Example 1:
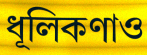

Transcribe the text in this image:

ধূলিকণাও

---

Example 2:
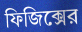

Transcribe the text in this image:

ফিজিক্সের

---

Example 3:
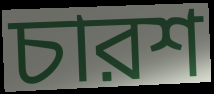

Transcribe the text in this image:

চারশ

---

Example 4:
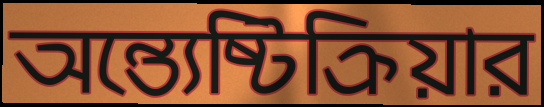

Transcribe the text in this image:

অন্ত্যেষ্টিক্রিয়ার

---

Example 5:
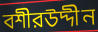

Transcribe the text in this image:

বশীরউদ্দীন